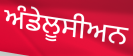
ਅੰਡੇਲੂਸੀਅਨ